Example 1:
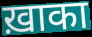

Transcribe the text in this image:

ख़ाका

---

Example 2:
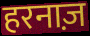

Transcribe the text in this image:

हरनाज़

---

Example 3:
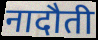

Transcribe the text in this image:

नादौती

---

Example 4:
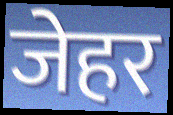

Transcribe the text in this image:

जेहर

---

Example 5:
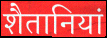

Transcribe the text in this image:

शैतानियां